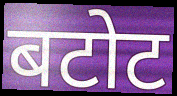
बटोट